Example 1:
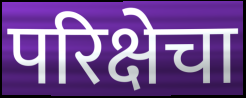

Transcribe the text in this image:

परिक्षेचा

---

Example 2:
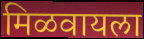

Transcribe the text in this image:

मिळवायला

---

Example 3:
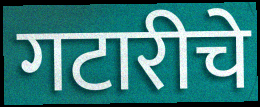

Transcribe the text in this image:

गटारीचे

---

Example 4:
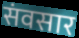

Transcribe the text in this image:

संवसार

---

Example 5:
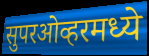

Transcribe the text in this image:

सुपरओव्हरमध्ये